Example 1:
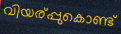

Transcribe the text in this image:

വിയര്പ്പുകൊണ്ട്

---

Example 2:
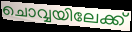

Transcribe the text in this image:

ചൊവ്വയിലേക്ക്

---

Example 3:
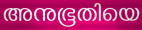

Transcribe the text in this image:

അനുഭൂതിയെ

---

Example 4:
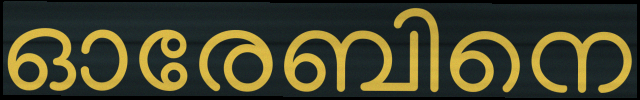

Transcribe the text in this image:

ഓരേബിനെ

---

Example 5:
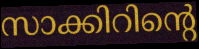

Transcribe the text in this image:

സാക്കിറിന്റെ